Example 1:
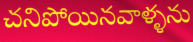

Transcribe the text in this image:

చనిపోయినవాళ్ళను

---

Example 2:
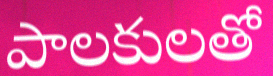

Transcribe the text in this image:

పాలకులతో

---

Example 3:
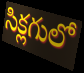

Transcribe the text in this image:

సిక్లగులో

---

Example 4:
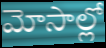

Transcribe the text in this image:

మోసాల్లో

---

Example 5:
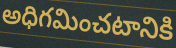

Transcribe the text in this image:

అధిగమించటానికి